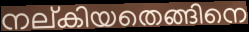
നല്കിയതെങ്ങിനെ